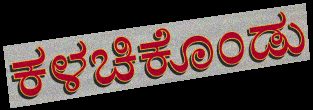
ಕಳಚಿಕೊಂಡು